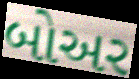
બોઅર